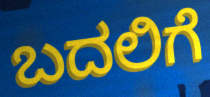
ಬದಲಿಗೆ